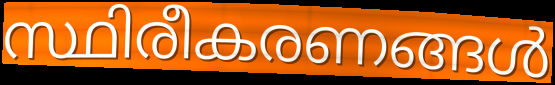
സ്ഥിരീകരണങ്ങൾ